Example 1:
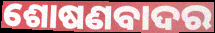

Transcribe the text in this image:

ଶୋଷଣବାଦର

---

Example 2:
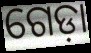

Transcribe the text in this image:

ଗେଡ଼ା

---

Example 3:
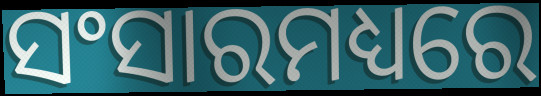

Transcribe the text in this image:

ସଂସାରମଧ୍ୟରେ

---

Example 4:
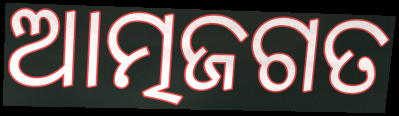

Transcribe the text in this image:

ଆତ୍ମଜଗତ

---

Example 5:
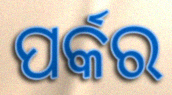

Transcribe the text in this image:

ପର୍କର